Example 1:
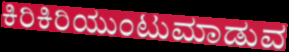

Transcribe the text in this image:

ಕಿರಿಕಿರಿಯುಂಟುಮಾಡುವ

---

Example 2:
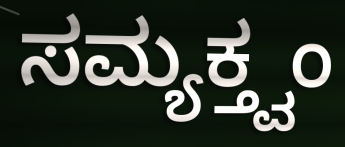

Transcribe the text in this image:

ಸಮ್ಯಕ್ತ್ವಂ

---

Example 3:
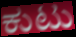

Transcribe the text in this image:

ಕುಟು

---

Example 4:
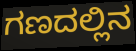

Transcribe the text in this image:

ಗಣದಲ್ಲಿನ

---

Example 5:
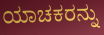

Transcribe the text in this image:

ಯಾಚಕರನ್ನು